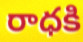
రాధకి